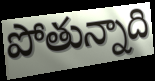
పోతున్నాది